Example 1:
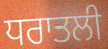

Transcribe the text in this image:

ਧਰਾਤਲੀ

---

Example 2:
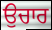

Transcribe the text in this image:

ਉਚਾਰ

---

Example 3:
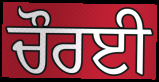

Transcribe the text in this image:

ਚੌਰਈ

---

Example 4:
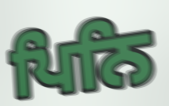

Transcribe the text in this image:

ਪਿਨਿ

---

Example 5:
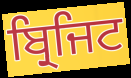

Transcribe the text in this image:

ਬ੍ਰਿਜਿਟ